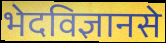
भेदविज्ञानसे